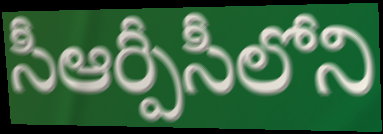
సీఆర్పీసీలోని